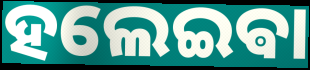
ହଲେଇଵା